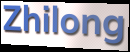
Zhilong